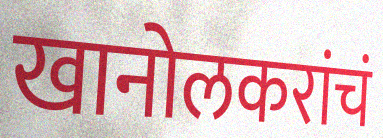
खानोलकरांचं